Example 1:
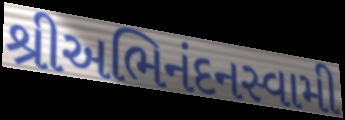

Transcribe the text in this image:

શ્રીઅભિનંદનસ્વામી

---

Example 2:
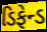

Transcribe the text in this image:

ડિફેન્ડ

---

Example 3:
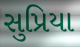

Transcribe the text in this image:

સુપ્રિયા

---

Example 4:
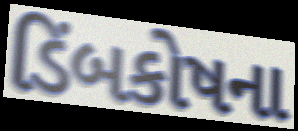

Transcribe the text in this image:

ડિંબકોષના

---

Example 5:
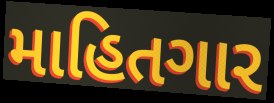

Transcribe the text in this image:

માહિતગાર